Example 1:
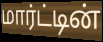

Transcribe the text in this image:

மார்ட்டின்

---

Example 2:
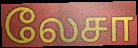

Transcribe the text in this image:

லேசா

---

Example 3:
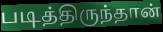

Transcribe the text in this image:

படித்திருந்தான்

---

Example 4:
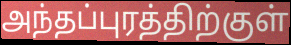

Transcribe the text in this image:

அந்தப்புரத்திற்குள்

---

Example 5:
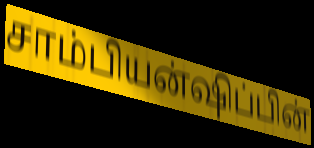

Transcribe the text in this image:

சாம்பியன்ஷிப்பின்